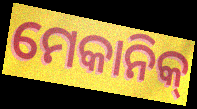
ମେକାନିକ୍